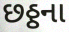
છઠ્ઠના